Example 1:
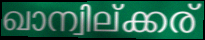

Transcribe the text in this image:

ഖാന്വില്ക്കര്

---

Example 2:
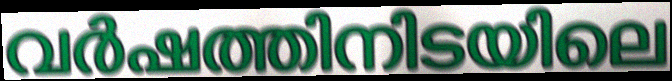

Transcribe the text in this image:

വർഷത്തിനിടയിലെ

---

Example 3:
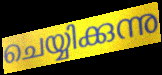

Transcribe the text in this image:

ചെയ്യിക്കുന്നു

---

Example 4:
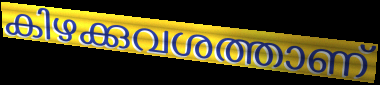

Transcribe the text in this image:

കിഴക്കുവശത്താണ്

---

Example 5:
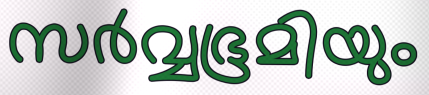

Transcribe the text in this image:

സർവ്വഭൂമിയും